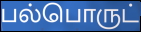
பல்பொருட்